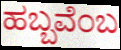
ಹಬ್ಬವೆಂಬ